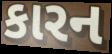
કારન